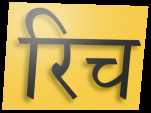
रिच